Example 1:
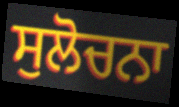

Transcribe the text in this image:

ਸੁਲੋਚਨਾ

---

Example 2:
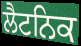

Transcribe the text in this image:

ਲੈਟਨਿਕ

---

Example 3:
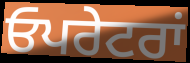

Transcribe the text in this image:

ਓਪਰੇਟਰਾਂ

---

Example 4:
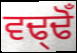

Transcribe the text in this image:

ਵਢ੍ਢੋਁ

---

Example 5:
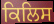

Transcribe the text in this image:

ਕਿਲਿਸ